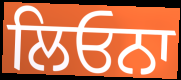
ਲਿਓਨਾ